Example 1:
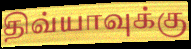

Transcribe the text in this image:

திவ்யாவுக்கு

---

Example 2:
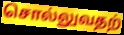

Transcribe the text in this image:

சொல்லுவதற்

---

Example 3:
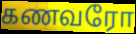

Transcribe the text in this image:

கணவரோ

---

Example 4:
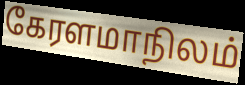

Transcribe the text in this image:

கேரளமாநிலம்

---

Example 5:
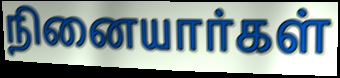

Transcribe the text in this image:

நினையார்கள்